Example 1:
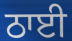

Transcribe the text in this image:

ਠਾਈ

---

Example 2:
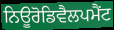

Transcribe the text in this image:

ਨਿਊਰੋਡਿਵੈਲਪਮੈਂਟ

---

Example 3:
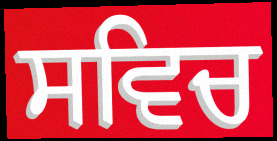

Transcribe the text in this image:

ਸਵਿਚ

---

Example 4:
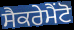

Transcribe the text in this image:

ਸੈਕਰੇਮੈਂਟੋ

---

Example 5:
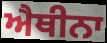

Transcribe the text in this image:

ਐਥੀਨਾ